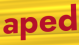
aped